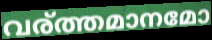
വര്ത്തമാനമോ